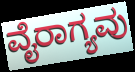
ವೈರಾಗ್ಯವು